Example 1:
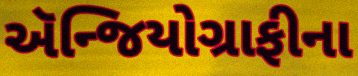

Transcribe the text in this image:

ઍન્જિયોગ્રાફીના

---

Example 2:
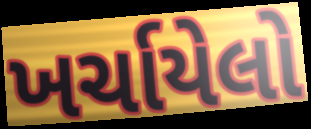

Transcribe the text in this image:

ખર્ચાયેલો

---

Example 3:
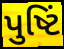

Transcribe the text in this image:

પુષ્ટિં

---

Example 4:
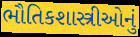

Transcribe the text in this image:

ભૌતિકશાસ્ત્રીઓનું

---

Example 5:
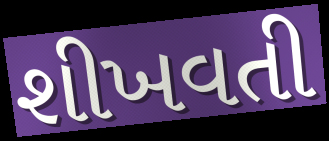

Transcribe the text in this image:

શીખવતી